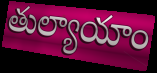
తుల్యాయాం